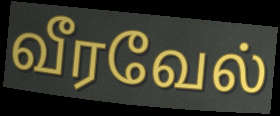
வீரவேல்